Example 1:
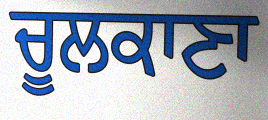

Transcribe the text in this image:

ਚੂਲਕਾਣਾ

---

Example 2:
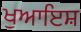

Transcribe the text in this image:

ਖੁਆਇਸ਼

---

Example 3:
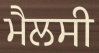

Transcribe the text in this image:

ਮੈਲਸੀ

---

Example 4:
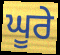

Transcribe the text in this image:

ਘੂਰੇ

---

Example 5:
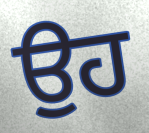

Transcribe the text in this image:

ਉੁਹ